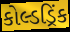
કોલ્ડડ્રિંક